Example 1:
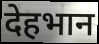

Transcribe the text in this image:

देहभान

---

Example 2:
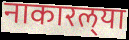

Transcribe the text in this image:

नाकारल्या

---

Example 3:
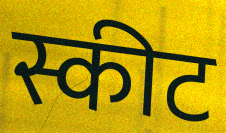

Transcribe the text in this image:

स्कीट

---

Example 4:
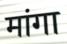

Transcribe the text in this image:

मांगा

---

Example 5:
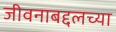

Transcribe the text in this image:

जीवनाबद्दलच्या